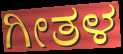
ಗೀತಳ